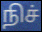
நிச்